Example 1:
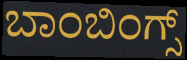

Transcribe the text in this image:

ಬಾಂಬಿಂಗ್ಸ್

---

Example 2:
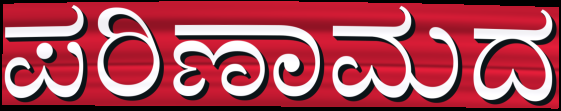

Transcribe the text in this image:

ಪರಿಣಾಮದ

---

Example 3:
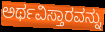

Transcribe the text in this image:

ಅರ್ಥವಿಸ್ತಾರವನ್ನು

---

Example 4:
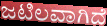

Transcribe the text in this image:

ಜಟಿಲವಾಗಿದೆ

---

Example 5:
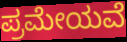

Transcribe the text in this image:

ಪ್ರಮೇಯವೆ